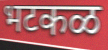
भटकळ